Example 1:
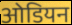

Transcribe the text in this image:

ओडियन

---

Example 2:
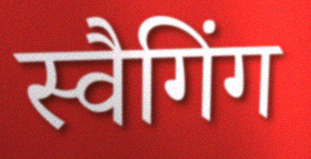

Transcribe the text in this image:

स्वैगिंग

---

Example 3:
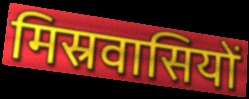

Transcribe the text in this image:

मिस्रवासियों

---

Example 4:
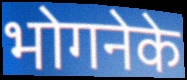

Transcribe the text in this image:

भोगनेके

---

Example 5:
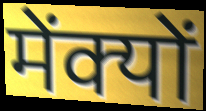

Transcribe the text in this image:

मेंक्यों